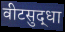
वीटसुद्धा